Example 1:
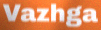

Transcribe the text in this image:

Vazhga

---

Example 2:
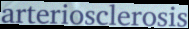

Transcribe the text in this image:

arteriosclerosis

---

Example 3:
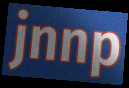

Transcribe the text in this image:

jnnp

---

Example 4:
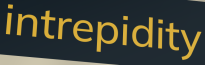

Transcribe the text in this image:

intrepidity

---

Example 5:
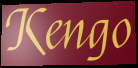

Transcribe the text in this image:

Kengo